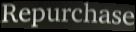
Repurchase